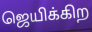
ஜெயிக்கிற